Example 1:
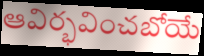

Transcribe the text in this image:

ఆవిర్భవించబోయే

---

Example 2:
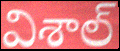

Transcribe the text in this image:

విశాల్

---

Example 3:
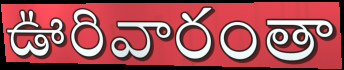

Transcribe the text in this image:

ఊరివారంతా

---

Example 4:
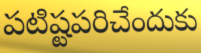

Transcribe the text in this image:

పటిష్టపరిచేందుకు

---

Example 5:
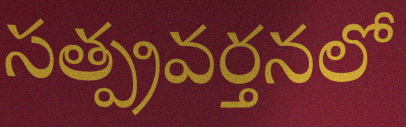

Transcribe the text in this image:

సత్ప్రవర్తనలో